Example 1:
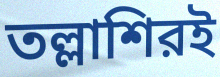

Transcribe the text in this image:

তল্লাশিরই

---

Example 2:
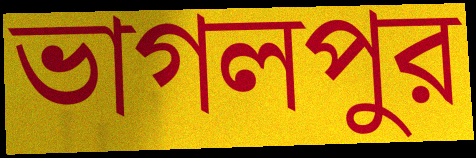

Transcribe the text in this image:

ভাগলপুর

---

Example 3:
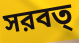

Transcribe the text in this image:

সরবত্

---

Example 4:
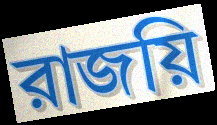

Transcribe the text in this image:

রাজয়ি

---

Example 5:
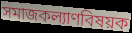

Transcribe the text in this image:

সমাজকল্যাণবিষয়ক